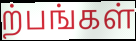
ற்பங்கள்